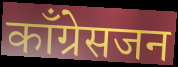
काँग्रेसजन